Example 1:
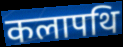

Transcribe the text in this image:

कलापथि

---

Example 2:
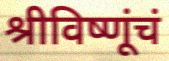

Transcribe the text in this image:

श्रीविष्णूंचं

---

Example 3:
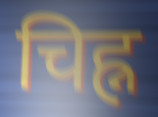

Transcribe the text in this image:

चिह्न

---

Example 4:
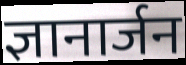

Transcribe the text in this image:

ज्ञानार्जन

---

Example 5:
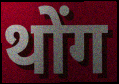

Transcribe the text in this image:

थोंग